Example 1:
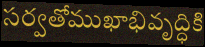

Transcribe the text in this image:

సర్వతోముఖాభివృద్ధికి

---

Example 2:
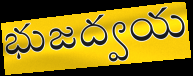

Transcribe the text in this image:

భుజద్వయ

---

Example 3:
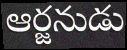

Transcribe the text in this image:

ఆర్జనుడు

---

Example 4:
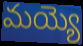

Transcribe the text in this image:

మయ్యె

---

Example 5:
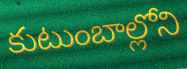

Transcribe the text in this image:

కుటుంబాల్లోని